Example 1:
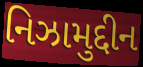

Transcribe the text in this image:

નિઝામુદ્દીન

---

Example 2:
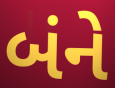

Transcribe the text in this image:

બંને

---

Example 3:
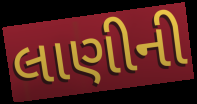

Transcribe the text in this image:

લાણીની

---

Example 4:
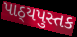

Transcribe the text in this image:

પાઠ્યપુસ્તક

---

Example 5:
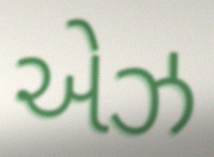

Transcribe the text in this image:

એઝ